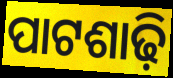
ପାଟଶାଢ଼ି